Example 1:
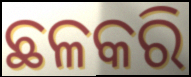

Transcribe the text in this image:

ଛଳକରି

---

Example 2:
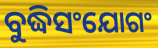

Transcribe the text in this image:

ବୁଦ୍ଧିସଂଯୋଗଂ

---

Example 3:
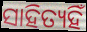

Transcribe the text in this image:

ସାହିତ୍ୟହିଁ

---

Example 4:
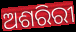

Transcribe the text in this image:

ଅଶରିରୀ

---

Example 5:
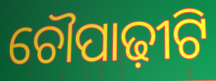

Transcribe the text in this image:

ଚୌପାଢ଼ୀଟି